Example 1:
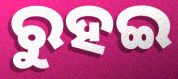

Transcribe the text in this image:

ରୁହଇ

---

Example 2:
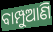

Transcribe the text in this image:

ବାମ୍ପୁଆଣି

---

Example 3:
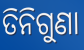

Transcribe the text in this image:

ତିନିଗୁଣା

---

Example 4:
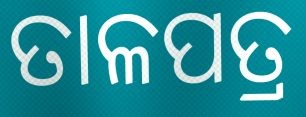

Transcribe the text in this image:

ତାଳପତ୍ର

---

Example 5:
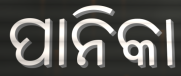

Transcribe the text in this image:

ପାନିକା